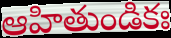
ఆహితుండికః